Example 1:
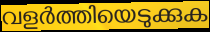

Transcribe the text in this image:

വളർത്തിയെടുക്കുക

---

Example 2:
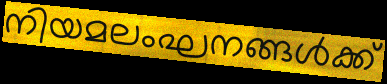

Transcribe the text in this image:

നിയമലംഘനങ്ങൾക്ക്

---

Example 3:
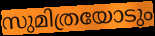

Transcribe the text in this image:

സുമിത്രയോടും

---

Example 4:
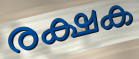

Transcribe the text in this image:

രക്ഷക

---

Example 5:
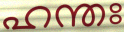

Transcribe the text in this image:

ഹന്തഃ